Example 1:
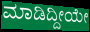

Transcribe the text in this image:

ಮಾಡಿದ್ದೀಯೇ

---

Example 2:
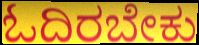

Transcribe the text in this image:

ಓದಿರಬೇಕು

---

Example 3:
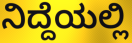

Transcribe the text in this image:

ನಿದ್ದೆಯಲ್ಲಿ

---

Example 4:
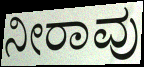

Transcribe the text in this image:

ನೀರಾವು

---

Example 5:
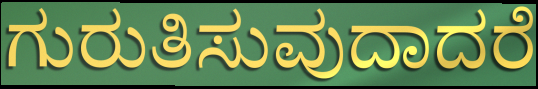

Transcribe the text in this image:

ಗುರುತಿಸುವುದಾದರೆ